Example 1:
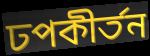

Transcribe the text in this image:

ঢপকীর্তন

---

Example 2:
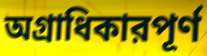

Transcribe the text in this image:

অগ্রাধিকারপূর্ণ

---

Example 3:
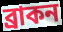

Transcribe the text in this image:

ব্রাকন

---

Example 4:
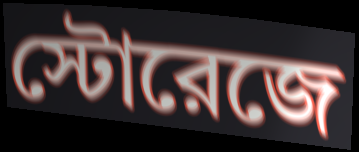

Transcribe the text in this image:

স্টোরেজে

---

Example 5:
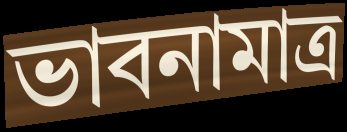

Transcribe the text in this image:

ভাবনামাত্র